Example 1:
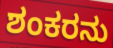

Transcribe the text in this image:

ಶಂಕರನು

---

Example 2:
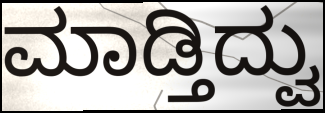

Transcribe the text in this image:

ಮಾಡ್ತಿದ್ವು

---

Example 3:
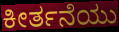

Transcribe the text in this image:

ಕೀರ್ತನೆಯು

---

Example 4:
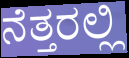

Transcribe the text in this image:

ನೆತ್ತರಲ್ಲಿ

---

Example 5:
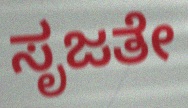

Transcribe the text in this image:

ಸೃಜತೇ